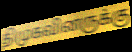
திமுகவினருக்கு